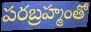
పరబ్రహ్మంతో